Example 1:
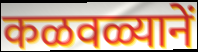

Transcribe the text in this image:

कळवळ्यानें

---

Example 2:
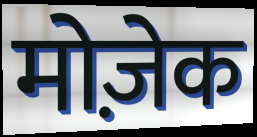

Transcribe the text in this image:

मोज़ेक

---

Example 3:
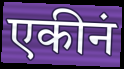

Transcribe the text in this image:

एकीनं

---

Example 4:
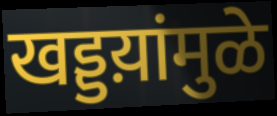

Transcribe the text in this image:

खड्डय़ांमुळे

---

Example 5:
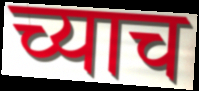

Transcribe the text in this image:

च्याच